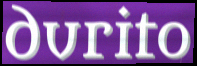
durito